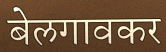
बेलगावकर